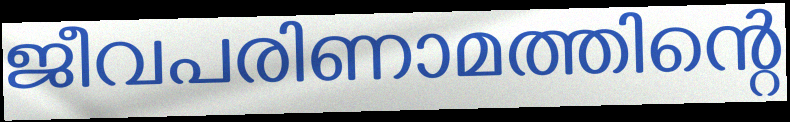
ജീവപരിണാമത്തിന്റെ